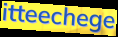
itteechege